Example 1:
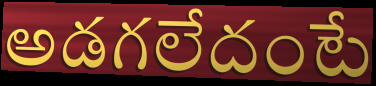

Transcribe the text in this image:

అడగలేదంటే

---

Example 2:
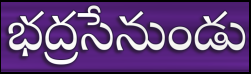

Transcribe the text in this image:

భద్రసేనుండు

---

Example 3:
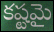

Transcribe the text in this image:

కష్టమై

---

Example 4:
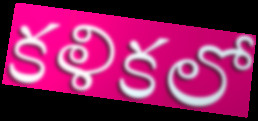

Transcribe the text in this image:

కళికలో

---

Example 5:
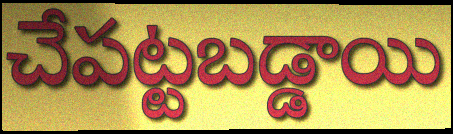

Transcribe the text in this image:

చేపట్టబడ్డాయి